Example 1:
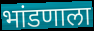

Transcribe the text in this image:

भांडणाला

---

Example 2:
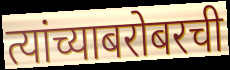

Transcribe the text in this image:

त्यांच्याबरोबरची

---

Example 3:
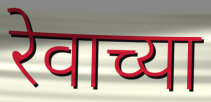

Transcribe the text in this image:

रेवाच्या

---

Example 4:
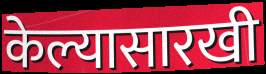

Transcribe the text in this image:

केल्यासारखी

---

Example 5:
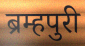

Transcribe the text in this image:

ब्रम्हपुरी